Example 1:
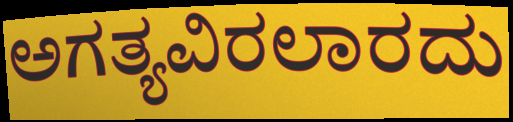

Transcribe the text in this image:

ಅಗತ್ಯವಿರಲಾರದು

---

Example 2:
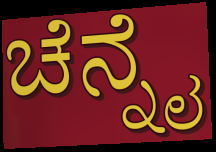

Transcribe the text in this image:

ಚೆನ್ನೈ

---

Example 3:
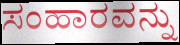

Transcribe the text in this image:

ಸಂಹಾರವನ್ನು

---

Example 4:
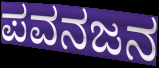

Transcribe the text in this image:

ಪವನಜನ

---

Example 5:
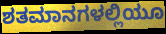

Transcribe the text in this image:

ಶತಮಾನಗಳಲ್ಲಿಯೂ